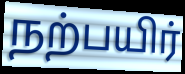
நற்பயிர்